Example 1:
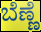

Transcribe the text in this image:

ಬೆಣ್ಣೆ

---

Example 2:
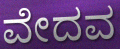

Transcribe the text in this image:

ವೇದವ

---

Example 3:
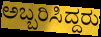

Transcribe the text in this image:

ಅಬ್ಬರಿಸಿದ್ದರು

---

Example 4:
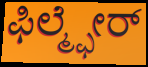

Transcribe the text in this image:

ಫಿಲ್ಮ್ಫೇರ್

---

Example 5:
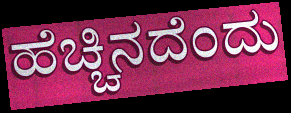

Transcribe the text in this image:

ಹೆಚ್ಚಿನದೆಂದು